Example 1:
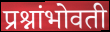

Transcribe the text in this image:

प्रश्नांभोवती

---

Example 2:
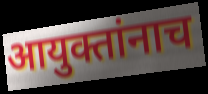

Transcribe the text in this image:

आयुक्तांनाच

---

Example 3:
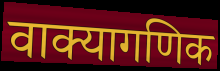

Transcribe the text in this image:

वाक्यागणिक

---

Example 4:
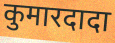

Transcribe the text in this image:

कुमारदादा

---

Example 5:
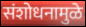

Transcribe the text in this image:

संशोधनामुळे